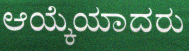
ಆಯ್ಕೆಯಾದರು